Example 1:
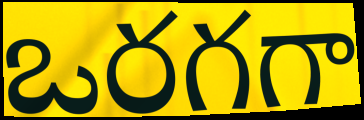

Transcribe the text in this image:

ఒరగగా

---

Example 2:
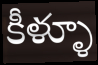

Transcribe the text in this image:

కీళ్ళూ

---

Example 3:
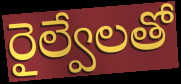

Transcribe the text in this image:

రైల్వేలతో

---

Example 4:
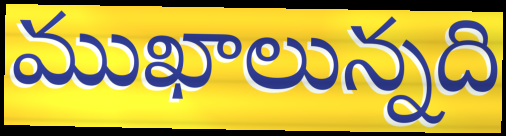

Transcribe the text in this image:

ముఖాలున్నది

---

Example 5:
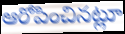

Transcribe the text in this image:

ఆరోపించినట్లూ